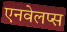
एनवेलप्स